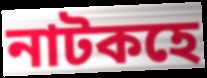
নাটকহে